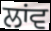
ਲਾਂਵ